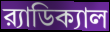
র‍্যাডিক্যাল